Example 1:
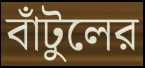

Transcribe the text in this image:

বাঁটুলের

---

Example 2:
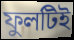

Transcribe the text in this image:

ফুলটিই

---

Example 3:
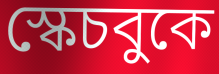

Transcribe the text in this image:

স্কেচবুকে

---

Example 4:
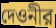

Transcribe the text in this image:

দেওনীর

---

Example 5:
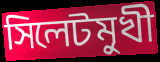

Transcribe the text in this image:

সিলেটমুখী